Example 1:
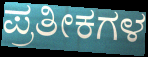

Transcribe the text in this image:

ಪ್ರತೀಕಗಳ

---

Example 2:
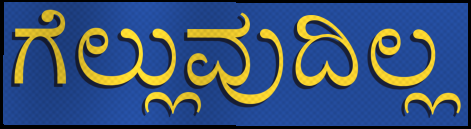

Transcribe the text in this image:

ಗೆಲ್ಲುವುದಿಲ್ಲ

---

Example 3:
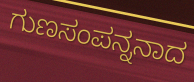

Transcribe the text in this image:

ಗುಣಸಂಪನ್ನನಾದ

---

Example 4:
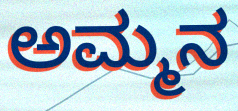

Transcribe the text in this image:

ಅಮ್ಮನ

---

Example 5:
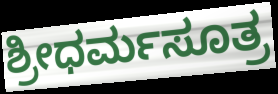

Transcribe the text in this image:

ಶ್ರೀಧರ್ಮಸೂತ್ರ